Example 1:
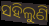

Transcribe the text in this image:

ସହିଲୁଣି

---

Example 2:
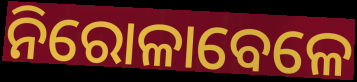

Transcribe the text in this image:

ନିରୋଳାବେଳେ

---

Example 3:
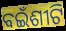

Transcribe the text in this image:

ବଇଁଶୀଟି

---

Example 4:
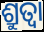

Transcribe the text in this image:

ଶ୍ରୁତ୍ଵା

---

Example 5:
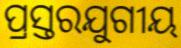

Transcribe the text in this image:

ପ୍ରସ୍ତରଯୁଗୀୟ